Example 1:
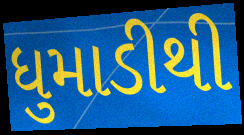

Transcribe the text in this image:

ધુમાડીથી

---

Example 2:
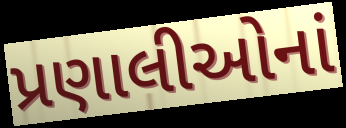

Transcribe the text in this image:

પ્રણાલીઓનાં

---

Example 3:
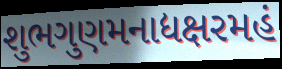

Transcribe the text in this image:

શુભગુણમનાદ્યક્ષરમહં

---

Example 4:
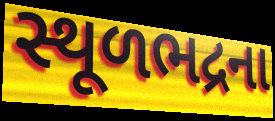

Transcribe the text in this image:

સ્થૂળભદ્રના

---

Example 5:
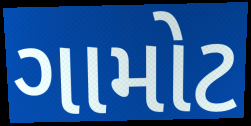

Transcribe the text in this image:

ગામોટ